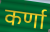
कर्णा